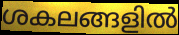
ശകലങ്ങളിൽ